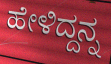
ಹೇಳಿದ್ದನ್ನ